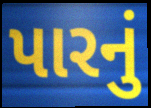
પારનું